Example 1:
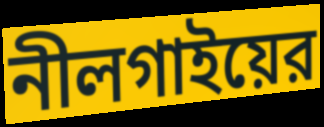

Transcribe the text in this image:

নীলগাইয়ের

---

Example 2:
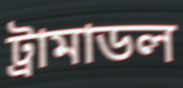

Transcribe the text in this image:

ট্রামাডল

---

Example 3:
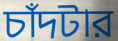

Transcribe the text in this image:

চাঁদটার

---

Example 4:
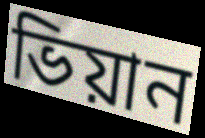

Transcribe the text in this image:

ভিয়ান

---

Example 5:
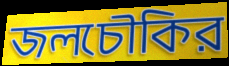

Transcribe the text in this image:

জলচৌকির